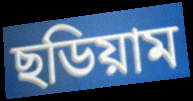
ছডিয়াম